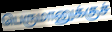
பெருமானுக்குச்